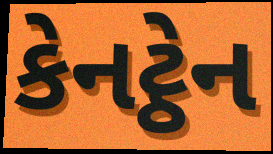
કેનટ્ઠેન